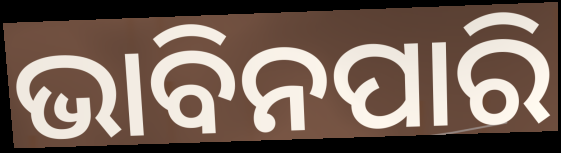
ଭାବିନପାରି